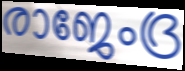
രാജേംദ്ര